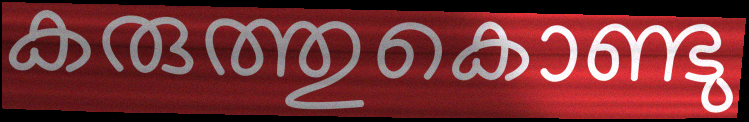
കരുത്തുകൊണ്ടു